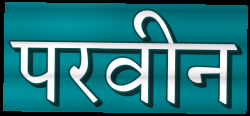
परवीन